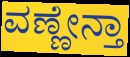
ವಣ್ಣೇನ್ತಾ